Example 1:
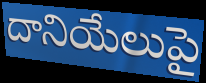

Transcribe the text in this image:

దానియేలుపై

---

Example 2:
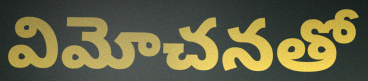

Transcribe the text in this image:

విమోచనతో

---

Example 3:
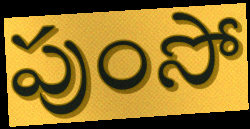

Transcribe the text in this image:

పుంసో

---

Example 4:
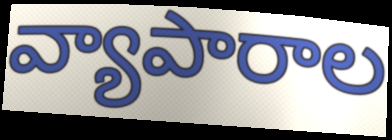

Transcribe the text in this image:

వ్యాపారాల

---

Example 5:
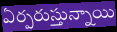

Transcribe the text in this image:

ఏర్పరుస్తున్నాయి